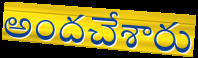
అందచేశారు